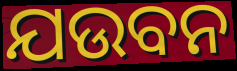
ଯଉବନ